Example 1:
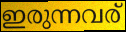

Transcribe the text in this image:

ഇരുന്നവര്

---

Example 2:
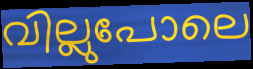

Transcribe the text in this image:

വില്ലുപോലെ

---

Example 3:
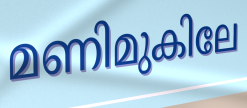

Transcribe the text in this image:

മണിമുകിലേ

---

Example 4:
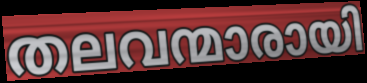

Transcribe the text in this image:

തലവന്മാരായി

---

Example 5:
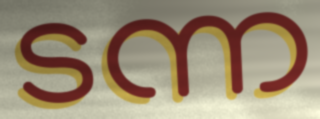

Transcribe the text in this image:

ടന്ന